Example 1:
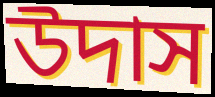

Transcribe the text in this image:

উদাস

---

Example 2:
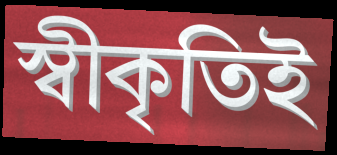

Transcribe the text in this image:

স্বীকৃতিই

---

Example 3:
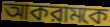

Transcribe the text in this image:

আকরামকে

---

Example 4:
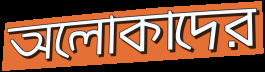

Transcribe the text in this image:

অলোকাদের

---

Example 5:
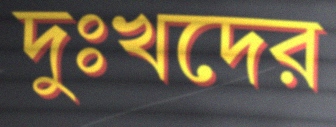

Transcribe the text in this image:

দুঃখদের